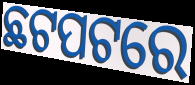
ଛଟପଟରେ